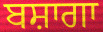
ਬਸ਼ਾਗਾ